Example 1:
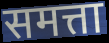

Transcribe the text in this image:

समत्ता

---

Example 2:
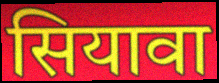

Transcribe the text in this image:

सियावा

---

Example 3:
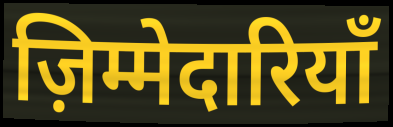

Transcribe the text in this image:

ज़िम्मेदारियाँ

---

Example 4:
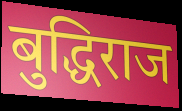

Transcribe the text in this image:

बुद्धिराज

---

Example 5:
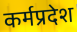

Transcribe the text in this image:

कर्मप्रदेश